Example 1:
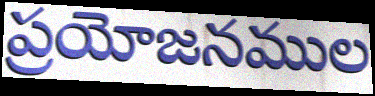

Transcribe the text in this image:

ప్రయోజనముల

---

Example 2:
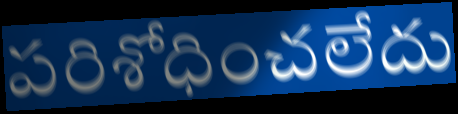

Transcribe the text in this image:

పరిశోధించలేదు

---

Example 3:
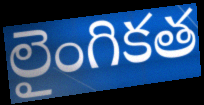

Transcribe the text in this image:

లైంగికత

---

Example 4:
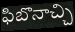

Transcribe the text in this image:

ఫిబొనాచ్చి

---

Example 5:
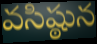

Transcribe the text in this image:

వసిష్ఠున